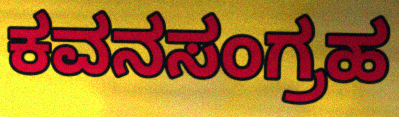
ಕವನಸಂಗ್ರಹ